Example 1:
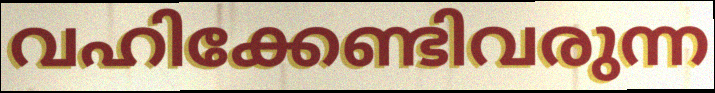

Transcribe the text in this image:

വഹിക്കേണ്ടിവരുന്ന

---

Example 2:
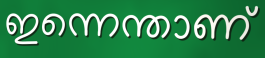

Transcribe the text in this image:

ഇന്നെന്താണ്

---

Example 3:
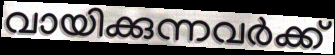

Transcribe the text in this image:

വായിക്കുന്നവർക്ക്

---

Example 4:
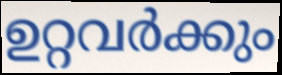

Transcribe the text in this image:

ഉറ്റവർക്കും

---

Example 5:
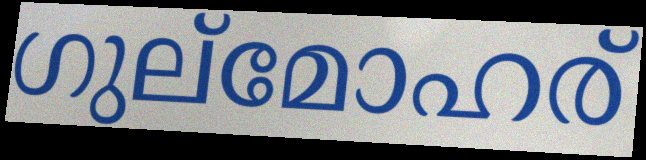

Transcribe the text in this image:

ഗുല്മോഹര്